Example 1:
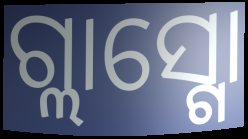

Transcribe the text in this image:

ଗ୍ଲାସ୍ଗୋ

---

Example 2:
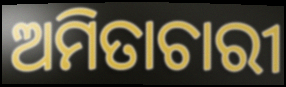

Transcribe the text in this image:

ଅମିତାଚାରୀ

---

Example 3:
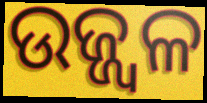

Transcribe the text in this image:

ଉଜ୍ଜ୍ବଳ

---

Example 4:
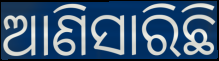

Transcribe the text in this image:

ଆଣିସାରିଛି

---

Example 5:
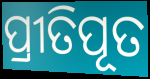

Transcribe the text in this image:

ପ୍ରୀତିପୂତ